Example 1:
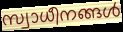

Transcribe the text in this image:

സ്വാധീനങ്ങൾ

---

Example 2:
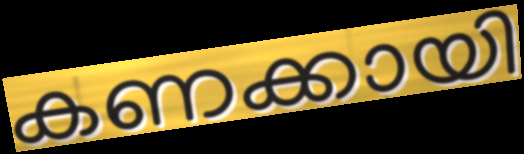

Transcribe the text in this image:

കണക്കായി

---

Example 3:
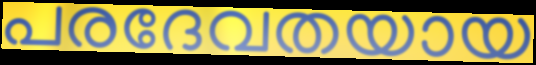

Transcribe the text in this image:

പരദേവതയായ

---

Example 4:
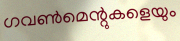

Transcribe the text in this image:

ഗവൺമെന്റുകളെയും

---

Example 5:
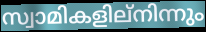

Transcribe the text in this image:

സ്വാമികളില്നിന്നും